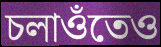
চলাওঁতেও